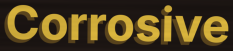
Corrosive